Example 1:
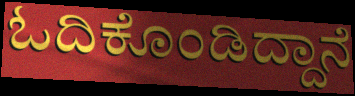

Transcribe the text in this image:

ಓದಿಕೊಂಡಿದ್ದಾನೆ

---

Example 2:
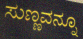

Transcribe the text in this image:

ಸುಣ್ಣವನ್ನೂ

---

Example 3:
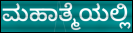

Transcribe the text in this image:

ಮಹಾತ್ಮೆಯಲ್ಲಿ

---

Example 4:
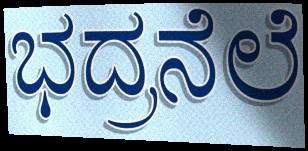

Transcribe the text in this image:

ಭದ್ರನೆಲೆ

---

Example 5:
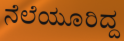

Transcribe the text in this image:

ನೆಲೆಯೂರಿದ್ದ